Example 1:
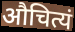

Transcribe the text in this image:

औचित्यं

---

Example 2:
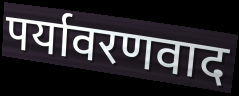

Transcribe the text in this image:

पर्यावरणवाद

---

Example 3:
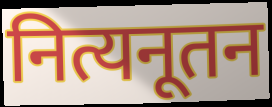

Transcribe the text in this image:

नित्यनूतन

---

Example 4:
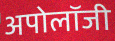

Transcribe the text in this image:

अपोलॉजी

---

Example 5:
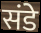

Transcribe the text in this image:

संडे